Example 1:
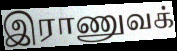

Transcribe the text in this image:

இராணுவக்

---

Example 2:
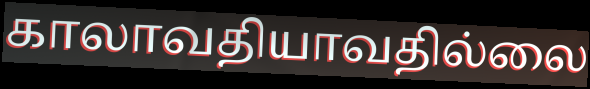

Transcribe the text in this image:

காலாவதியாவதில்லை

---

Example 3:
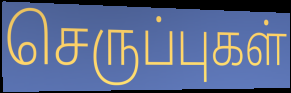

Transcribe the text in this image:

செருப்புகள்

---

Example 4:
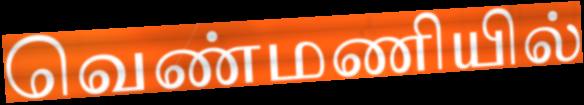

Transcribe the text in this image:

வெண்மணியில்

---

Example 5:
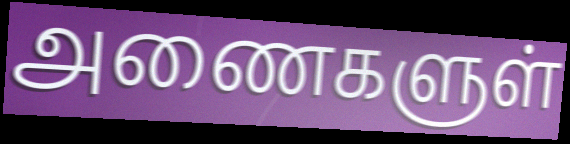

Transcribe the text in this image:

அணைகளுள்